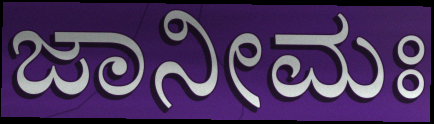
ಜಾನೀಮಃ